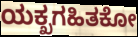
ಯಕ್ಖಗಹಿತಕೋ